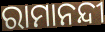
ରାମାନନ୍ଦୀ